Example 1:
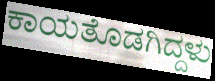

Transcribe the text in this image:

ಕಾಯತೊಡಗಿದ್ದಳು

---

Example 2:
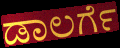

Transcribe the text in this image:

ಡಾಲರ್ಗೆ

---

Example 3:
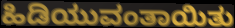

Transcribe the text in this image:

ಹಿಡಿಯುವಂತಾಯಿತು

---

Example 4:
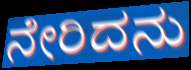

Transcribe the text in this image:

ನೇರಿದನು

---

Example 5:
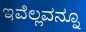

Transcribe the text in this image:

ಇವೆಲ್ಲವನ್ನೂ